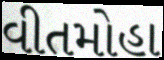
વીતમોહા